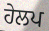
ਹੇਲਪ